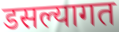
डसल्यागत